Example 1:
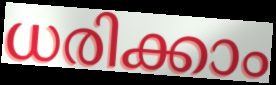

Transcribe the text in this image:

ധരിക്കാം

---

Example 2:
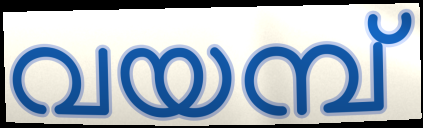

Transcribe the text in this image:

വയമ്പ്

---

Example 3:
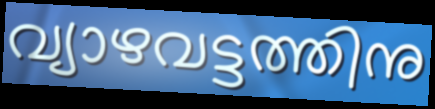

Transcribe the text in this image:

വ്യാഴവട്ടത്തിനു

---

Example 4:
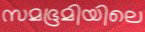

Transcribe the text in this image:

സമഭൂമിയിലെ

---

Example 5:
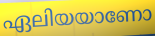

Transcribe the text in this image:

ഏലിയയാണോ